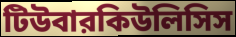
টিউবারকিউলিসিস